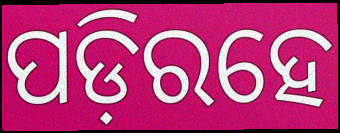
ପଡ଼ିରହେ